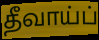
தீவாய்ப்